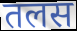
तलस